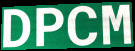
DPCM